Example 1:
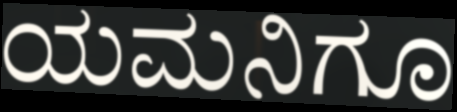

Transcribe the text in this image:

ಯಮನಿಗೂ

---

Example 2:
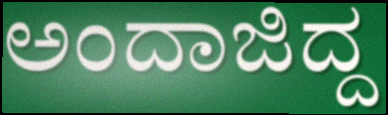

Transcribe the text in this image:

ಅಂದಾಜಿದ್ದ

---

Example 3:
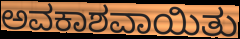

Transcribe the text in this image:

ಅವಕಾಶವಾಯಿತು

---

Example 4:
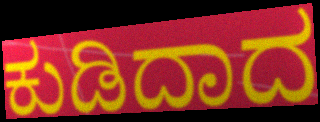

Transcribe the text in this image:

ಕುಡಿದಾದ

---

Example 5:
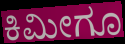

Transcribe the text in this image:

ಕಿಮೀಗೂ